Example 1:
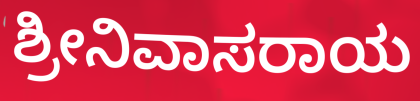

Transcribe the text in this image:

ಶ್ರೀನಿವಾಸರಾಯ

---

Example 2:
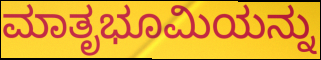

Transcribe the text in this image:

ಮಾತೃಭೂಮಿಯನ್ನು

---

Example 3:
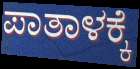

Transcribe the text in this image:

ಪಾತಾಳಕ್ಕೆ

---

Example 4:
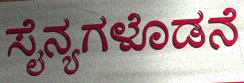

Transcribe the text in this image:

ಸೈನ್ಯಗಳೊಡನೆ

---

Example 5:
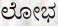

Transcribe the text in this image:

ಲೋಭ